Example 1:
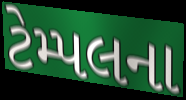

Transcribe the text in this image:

ટેમ્પલના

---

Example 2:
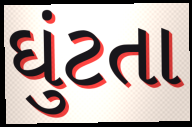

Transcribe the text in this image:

ઘુંટતા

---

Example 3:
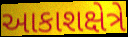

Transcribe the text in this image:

આકાશક્ષેત્રે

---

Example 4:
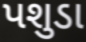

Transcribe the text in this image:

પશુડા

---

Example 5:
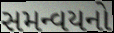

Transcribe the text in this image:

સમન્વયનો